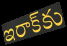
ఇరాక్‌కు